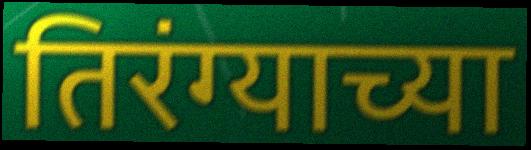
तिरंग्याच्या